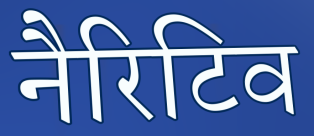
नैरिटिव